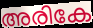
അരികേ